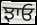
ਝਾਓ